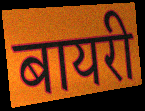
बायरी